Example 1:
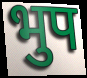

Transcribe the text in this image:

भुप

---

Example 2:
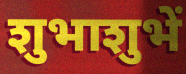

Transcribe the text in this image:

शुभाशुभें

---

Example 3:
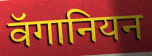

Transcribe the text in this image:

वॅगानियन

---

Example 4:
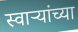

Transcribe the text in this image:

स्वाऱ्यांच्या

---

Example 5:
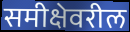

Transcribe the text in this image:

समीक्षेवरील